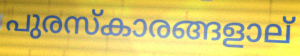
പുരസ്കാരങ്ങളാല്